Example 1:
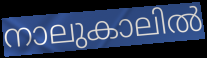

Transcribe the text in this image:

നാലുകാലിൽ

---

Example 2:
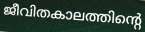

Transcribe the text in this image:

ജീവിതകാലത്തിന്റെ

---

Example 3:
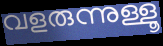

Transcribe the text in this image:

വളരുന്നുള്ളൂ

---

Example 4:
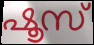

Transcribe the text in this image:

ഷൂസ്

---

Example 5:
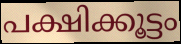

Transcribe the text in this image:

പക്ഷിക്കൂട്ടം